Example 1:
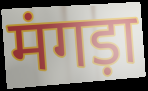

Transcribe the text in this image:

मंगड़ा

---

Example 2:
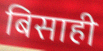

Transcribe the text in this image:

बिसाही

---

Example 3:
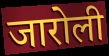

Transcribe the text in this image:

जारोली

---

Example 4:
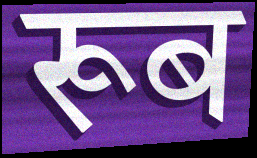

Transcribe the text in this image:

रूब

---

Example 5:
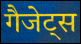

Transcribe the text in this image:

गैजेट्स